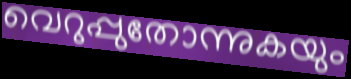
വെറുപ്പുതോന്നുകയും